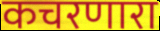
कचरणारा